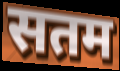
सतम